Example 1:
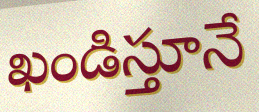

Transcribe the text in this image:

ఖండిస్తూనే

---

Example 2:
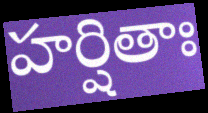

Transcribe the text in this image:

హర్షితాః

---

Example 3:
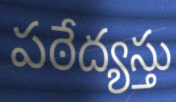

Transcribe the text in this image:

పఠేద్యస్తు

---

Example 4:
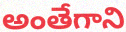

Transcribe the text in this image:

అంతేగాని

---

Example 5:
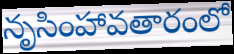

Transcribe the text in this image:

నృసింహావతారంలో